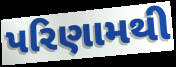
પરિણામથી